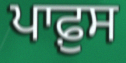
ਪਾਫ਼ੁਸ